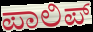
ಪಾಲಿಪ್